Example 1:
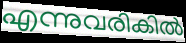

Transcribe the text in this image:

എന്നുവരികിൽ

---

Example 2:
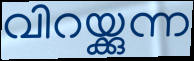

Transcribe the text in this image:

വിറയ്ക്കുന്ന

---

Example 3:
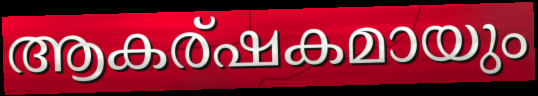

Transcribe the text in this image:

ആകര്ഷകമായും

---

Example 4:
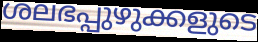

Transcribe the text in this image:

ശലഭപ്പുഴുക്കളുടെ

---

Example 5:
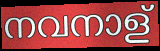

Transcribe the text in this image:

നവനാള്